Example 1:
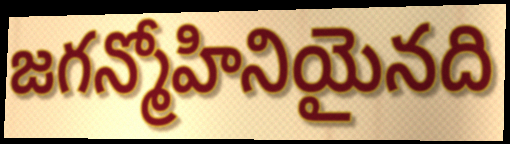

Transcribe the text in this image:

జగన్మోహినియైనది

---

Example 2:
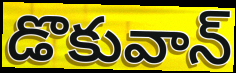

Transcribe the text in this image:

డొకువాన్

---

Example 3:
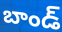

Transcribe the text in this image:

బాండ్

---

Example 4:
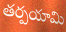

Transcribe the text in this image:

తర్పయామి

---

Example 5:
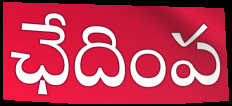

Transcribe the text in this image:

ఛేదింప